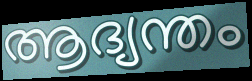
ആദ്യന്തം